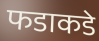
फडाकडे